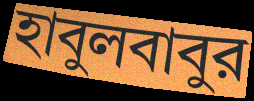
হাবুলবাবুর